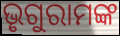
ଭୃଗୁରାମଙ୍କ